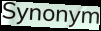
Synonym